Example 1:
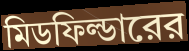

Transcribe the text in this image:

মিডফিল্ডারের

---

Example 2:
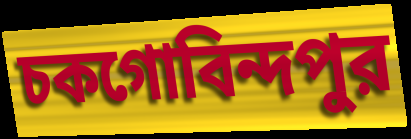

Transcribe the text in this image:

চকগোবিন্দপুর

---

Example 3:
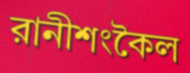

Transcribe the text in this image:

রানীশংকৈল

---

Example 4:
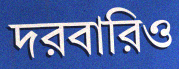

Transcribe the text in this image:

দরবারিও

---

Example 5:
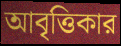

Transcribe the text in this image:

আবৃত্তিকার